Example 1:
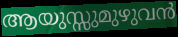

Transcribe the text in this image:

ആയുസ്സുമുഴുവൻ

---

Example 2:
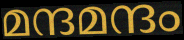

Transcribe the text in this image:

മന്ദമന്ദം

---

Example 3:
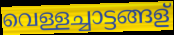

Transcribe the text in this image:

വെള്ളച്ചാട്ടങ്ങള്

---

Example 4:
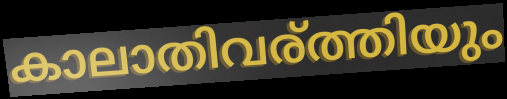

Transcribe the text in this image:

കാലാതിവര്ത്തിയും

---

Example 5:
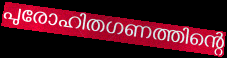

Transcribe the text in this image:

പുരോഹിതഗണത്തിന്റെ